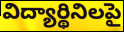
విద్యార్థినిలపై